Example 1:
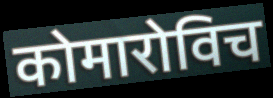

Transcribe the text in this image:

कोमारोविच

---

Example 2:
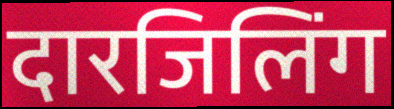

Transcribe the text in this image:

दारजिलिंग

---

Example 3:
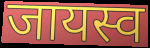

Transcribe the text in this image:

जायस्व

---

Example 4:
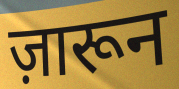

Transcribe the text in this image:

ज़ारून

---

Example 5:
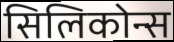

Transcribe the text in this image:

सिलिकोन्स